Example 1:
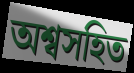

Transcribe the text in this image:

অশ্বসহিত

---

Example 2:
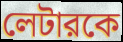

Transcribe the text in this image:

লেটারকে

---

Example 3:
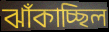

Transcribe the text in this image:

ঝাঁকাচ্ছিল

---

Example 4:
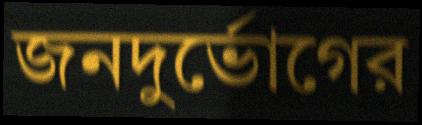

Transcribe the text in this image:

জনদুর্ভোগের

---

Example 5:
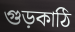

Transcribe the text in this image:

গুড়কাঠি